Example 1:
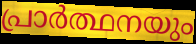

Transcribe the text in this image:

പ്രാർത്ഥനയും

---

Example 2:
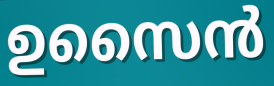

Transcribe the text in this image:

ഉസൈൻ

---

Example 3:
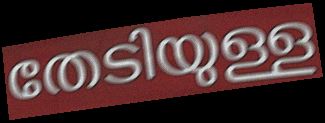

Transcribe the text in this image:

തേടിയുള്ള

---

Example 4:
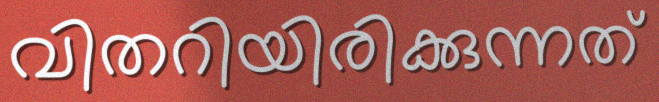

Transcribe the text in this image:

വിതറിയിരിക്കുന്നത്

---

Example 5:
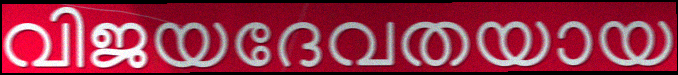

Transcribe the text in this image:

വിജയദേവതയായ